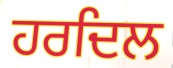
ਹਰਦਿਲ